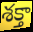
శక్తా